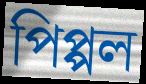
পিপ্পল